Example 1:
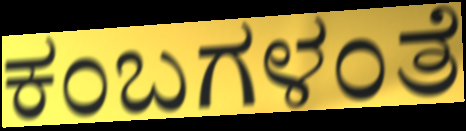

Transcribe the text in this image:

ಕಂಬಗಳಂತೆ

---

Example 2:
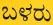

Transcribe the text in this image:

ಬಳರು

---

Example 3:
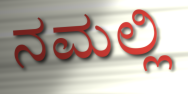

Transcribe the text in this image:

ನಮಲ್ಲಿ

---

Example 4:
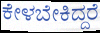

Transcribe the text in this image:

ಕೇಳಬೇಕಿದ್ದರೆ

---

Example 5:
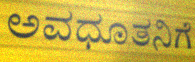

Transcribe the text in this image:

ಅವಧೂತನಿಗೆ